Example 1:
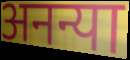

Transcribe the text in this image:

अनन्या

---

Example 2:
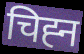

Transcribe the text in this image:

चिह्‍न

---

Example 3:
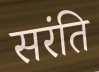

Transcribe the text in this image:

सरंति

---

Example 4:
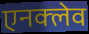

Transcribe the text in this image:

एनक्‍लेव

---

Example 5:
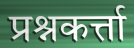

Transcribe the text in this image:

प्रश्नकर्त्ता